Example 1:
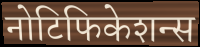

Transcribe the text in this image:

नोटिफिकेशन्स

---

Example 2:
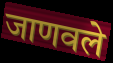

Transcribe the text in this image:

जाणवले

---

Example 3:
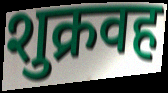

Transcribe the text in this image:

शुक्रवह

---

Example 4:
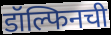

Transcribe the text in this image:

डॉल्फिनची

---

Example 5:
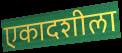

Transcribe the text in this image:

एकादशीला